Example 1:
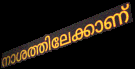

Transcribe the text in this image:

നാശത്തിലേക്കാണ്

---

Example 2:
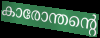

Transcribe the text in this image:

കാരോന്തന്റെ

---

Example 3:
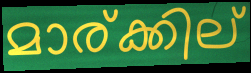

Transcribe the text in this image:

മാര്ക്കില്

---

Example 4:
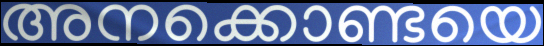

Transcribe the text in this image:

അനക്കൊണ്ടയെ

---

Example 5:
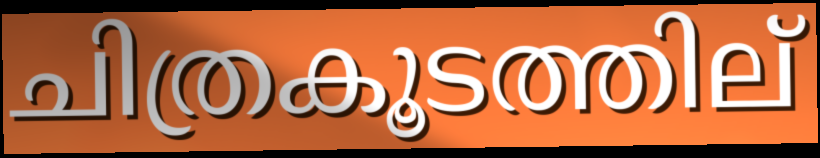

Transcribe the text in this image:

ചിത്രകൂടത്തില്